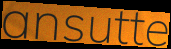
ansutte